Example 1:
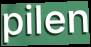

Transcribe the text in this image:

pilen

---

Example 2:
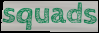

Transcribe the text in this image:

squads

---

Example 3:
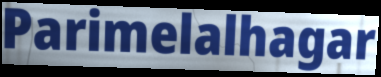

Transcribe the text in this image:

Parimelalhagar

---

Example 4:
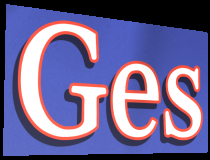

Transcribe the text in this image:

Ges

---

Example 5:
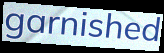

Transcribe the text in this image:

garnished